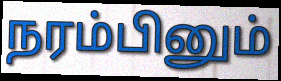
நரம்பினும்